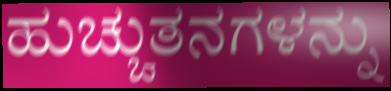
ಹುಚ್ಚುತನಗಳನ್ನು